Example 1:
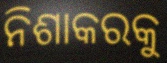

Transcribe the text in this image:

ନିଶାକରକୁ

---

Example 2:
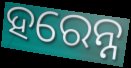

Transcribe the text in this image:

ହରେନ୍ନ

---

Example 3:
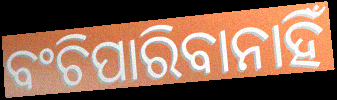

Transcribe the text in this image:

ବଂଚିପାରିବାନାହିଁ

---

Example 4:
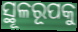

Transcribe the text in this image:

ସ୍ଥୂଳରୂପକୁ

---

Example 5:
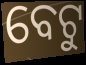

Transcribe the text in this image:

ବେଟୁ